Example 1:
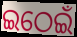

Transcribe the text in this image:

ଇଠେଇଁ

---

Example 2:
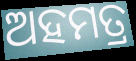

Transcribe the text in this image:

ଅହମତ୍ର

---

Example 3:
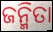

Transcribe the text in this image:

ଜନ୍ମିତା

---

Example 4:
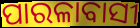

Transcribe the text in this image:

ପାରଳାବାସୀ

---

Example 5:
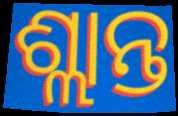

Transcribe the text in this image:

ଶ୍ଲାନ୍ତ